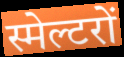
स्मेल्टरों